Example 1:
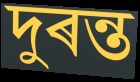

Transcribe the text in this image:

দুৰন্ত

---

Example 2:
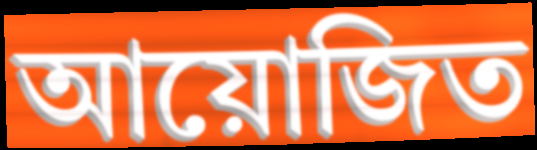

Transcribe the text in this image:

আয়োজিত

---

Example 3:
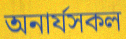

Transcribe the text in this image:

অনাৰ্যসকল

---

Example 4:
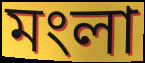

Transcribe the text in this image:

মংলা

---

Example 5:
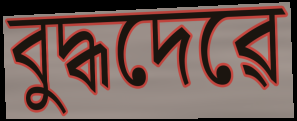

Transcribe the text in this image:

বুদ্ধদেৱে